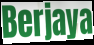
Berjaya